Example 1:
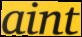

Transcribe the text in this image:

aint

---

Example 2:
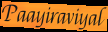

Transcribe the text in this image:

Paayiraviyal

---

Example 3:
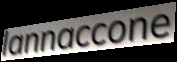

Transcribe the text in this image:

Iannaccone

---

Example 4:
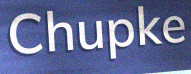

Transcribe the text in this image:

Chupke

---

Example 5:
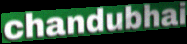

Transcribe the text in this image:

chandubhai